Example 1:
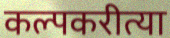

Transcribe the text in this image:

कल्पकरीत्या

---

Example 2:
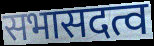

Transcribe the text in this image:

सभासदत्व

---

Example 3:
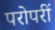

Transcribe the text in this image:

परोपरीं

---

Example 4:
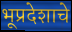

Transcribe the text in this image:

भूप्रदेशाचे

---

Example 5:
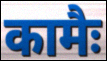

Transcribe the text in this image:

कामैः